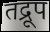
तद्रूप